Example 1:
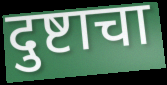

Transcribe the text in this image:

दुष्टाचा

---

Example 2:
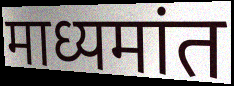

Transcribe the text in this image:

माध्यमांत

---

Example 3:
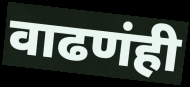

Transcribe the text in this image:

वाढणंही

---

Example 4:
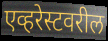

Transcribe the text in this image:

एव्हरेस्टवरील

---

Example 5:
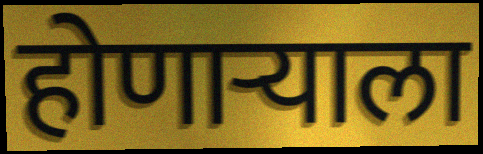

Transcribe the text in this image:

होणाऱ्याला